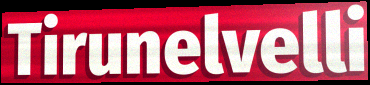
Tirunelvelli